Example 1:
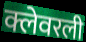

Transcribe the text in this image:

क्लेवरली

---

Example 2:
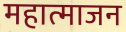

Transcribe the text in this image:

महात्माजन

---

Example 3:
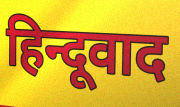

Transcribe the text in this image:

हिन्दूवाद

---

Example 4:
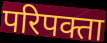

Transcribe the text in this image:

परिपक्ता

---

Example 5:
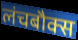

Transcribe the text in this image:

लंचबौक्स